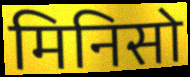
मिनिसो